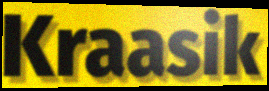
Kraasik